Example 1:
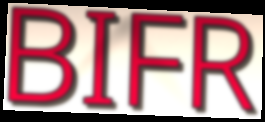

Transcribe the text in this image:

BIFR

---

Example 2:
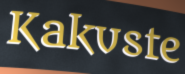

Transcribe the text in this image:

Kakuste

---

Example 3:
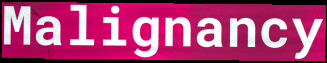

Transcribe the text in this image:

Malignancy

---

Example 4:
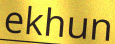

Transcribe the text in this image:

ekhun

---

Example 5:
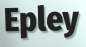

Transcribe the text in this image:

Epley